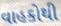
વાહકોથી